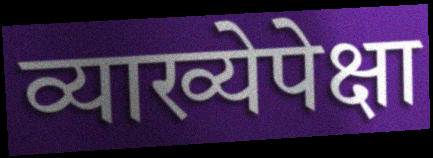
व्याख्येपेक्षा